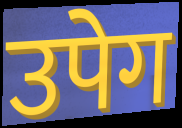
उपेग